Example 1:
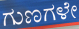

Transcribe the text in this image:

ಗುಣಗಳೇ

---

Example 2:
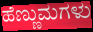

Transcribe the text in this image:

ಹೆಣ್ಣುಮಗಳು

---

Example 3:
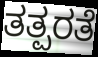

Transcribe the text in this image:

ತತ್ಪರತೆ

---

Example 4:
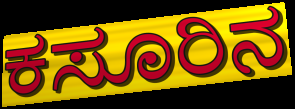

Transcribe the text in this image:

ಕಸೂರಿನ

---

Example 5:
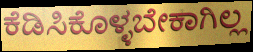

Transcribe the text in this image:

ಕೆಡಿಸಿಕೊಳ್ಳಬೇಕಾಗಿಲ್ಲ